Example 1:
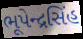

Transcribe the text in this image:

ભૂપેન્દ્રસિંહ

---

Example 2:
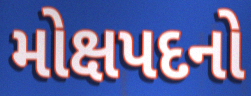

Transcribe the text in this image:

મોક્ષપદનો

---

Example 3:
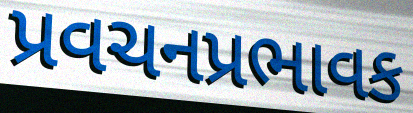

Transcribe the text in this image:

પ્રવચનપ્રભાવક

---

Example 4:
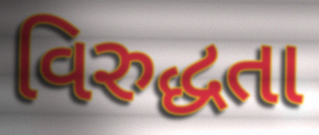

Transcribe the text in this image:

વિરુદ્ધતા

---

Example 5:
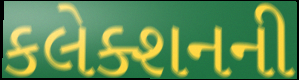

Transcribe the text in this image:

કલેક્શનની